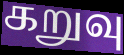
கறுவு